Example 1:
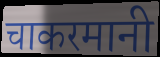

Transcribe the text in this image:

चाकरमानी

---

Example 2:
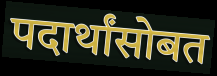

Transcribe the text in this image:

पदार्थांसोबत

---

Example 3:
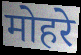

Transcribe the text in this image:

मोहरे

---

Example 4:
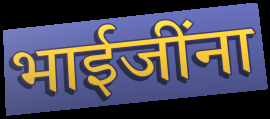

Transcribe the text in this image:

भाईजींना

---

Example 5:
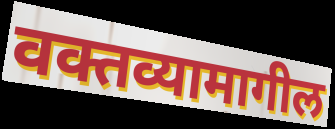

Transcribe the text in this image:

वक्तव्यामागील